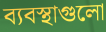
ব্যবস্থাগুলো